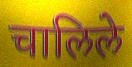
चालिले